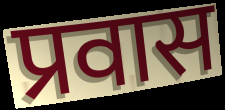
प्रवास